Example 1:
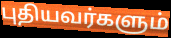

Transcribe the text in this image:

புதியவர்களும்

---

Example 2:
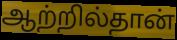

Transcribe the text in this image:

ஆற்றில்தான்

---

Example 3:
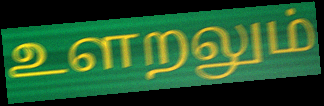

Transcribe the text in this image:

உளறலும்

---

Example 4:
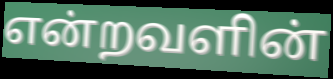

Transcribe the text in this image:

என்றவளின்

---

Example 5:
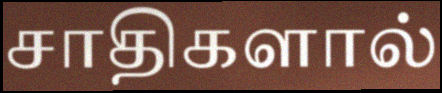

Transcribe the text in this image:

சாதிகளால்